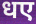
धए